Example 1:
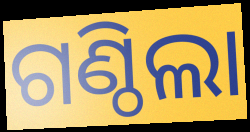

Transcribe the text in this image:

ଗଣ୍ଠିଲା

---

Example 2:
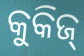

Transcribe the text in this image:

କୁକିଜ୍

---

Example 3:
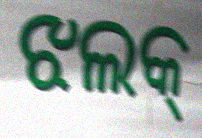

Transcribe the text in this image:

ଝଲକ୍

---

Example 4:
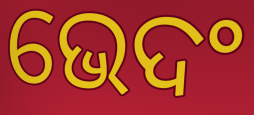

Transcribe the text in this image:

ଭେଦଂ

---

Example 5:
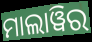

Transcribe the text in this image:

ମାଲାୱିର